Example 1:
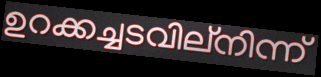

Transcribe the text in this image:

ഉറക്കച്ചടവില്നിന്ന്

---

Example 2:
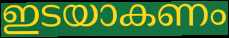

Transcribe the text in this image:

ഇടയാകണം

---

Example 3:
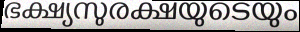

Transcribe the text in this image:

ഭക്ഷ്യസുരക്ഷയുടെയും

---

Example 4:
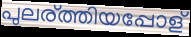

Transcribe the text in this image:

പുലര്ത്തിയപ്പോള്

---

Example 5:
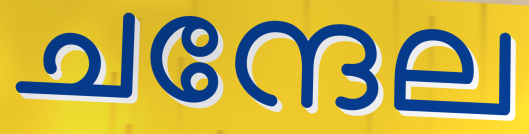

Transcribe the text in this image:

ചന്ദേല